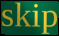
skip